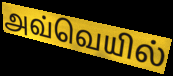
அவ்வெயில்